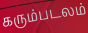
கரும்படலம்